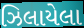
ઝિલાયેલા